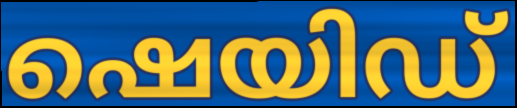
ഷെയിഡ്